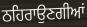
ਠਹਿਰਾਉਣਗੀਆਂ